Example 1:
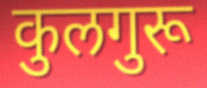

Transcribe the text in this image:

कुलगुरू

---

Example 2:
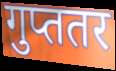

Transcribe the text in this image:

गुप्ततर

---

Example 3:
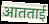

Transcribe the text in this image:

आतताई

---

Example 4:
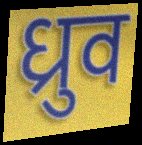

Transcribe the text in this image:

ध्रुव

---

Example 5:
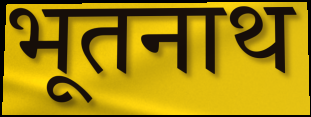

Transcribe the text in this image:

भूतनाथ